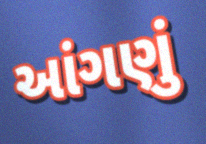
આંગણું